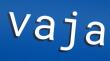
vaja